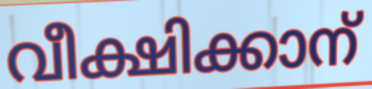
വീക്ഷിക്കാന്